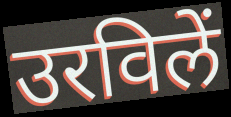
उरविलें